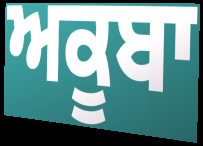
ਅਕੂਬਾ